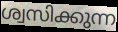
ശ്വസിക്കുന്ന